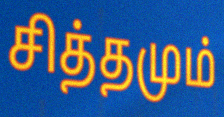
சித்தமும்